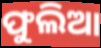
ଫୁଲିଆ